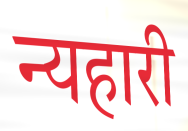
न्यहारी